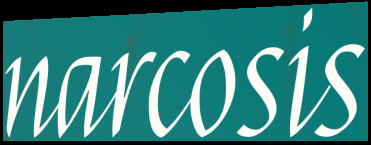
narcosis